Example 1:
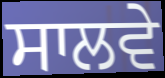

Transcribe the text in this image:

ਸਾਲਵੇ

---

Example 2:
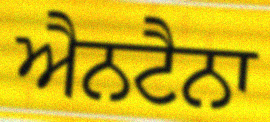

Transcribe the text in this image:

ਐਨਟੈਨਾ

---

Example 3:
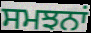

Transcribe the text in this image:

ਸਮਝਨਾਂ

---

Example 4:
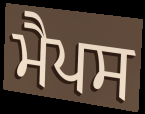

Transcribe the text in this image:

ਮੈਪਸ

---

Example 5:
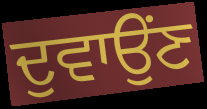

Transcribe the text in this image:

ਦੁਵਾਉਂਣ